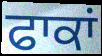
ਫਾਕਾਂ